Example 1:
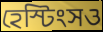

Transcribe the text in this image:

হেস্টিংসও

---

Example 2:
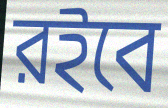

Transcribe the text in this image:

রইবে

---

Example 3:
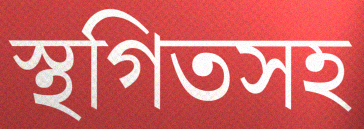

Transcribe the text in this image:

স্থগিতসহ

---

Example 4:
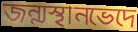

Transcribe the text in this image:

জন্মস্থানভেদে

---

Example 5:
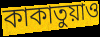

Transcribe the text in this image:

কাকাতুয়াও